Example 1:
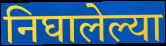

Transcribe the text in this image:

निघालेल्या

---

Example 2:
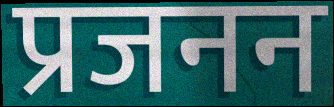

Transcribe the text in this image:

प्रजनन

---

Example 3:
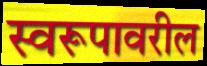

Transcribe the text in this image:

स्वरूपावरील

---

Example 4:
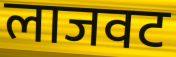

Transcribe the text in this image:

लाजवट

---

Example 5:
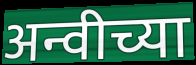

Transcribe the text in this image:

अन्वीच्या